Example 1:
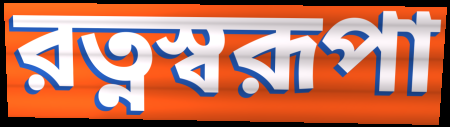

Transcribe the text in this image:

রত্নস্বরূপা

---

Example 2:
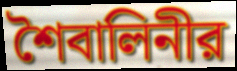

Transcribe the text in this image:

শৈবালিনীর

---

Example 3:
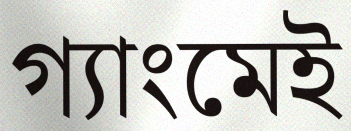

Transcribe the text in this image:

গ্যাংমেই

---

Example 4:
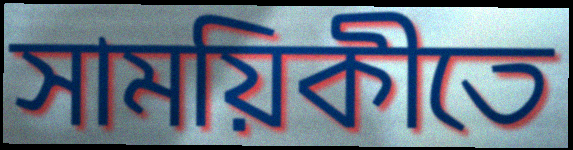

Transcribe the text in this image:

সাময়িকীতে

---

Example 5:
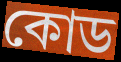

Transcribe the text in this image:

কোড